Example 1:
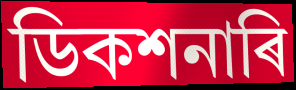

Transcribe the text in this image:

ডিকশনাৰি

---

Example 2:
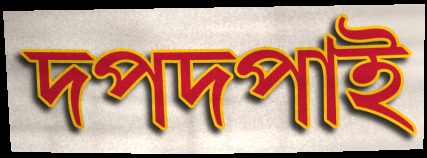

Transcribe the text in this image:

দপদপাই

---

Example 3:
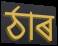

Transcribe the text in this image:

ঠাৰ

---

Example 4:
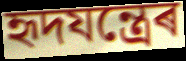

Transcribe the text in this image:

হৃদযন্ত্ৰেৰ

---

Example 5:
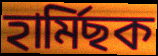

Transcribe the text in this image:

হাৰ্মিছক